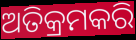
ଅତିକ୍ରମକରି